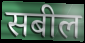
सबील